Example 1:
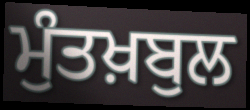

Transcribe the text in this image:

ਮੁੰਤਖ਼ਬੁਲ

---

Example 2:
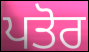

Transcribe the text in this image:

ਪਤੋਰ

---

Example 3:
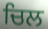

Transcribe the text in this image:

ਚਿਲ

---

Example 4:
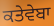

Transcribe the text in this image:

ਕਤੇਵੇਬਾ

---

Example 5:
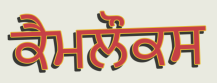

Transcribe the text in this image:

ਕੈਮਲੌਕਸ